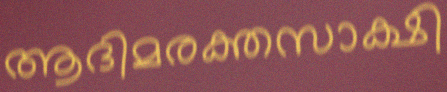
ആദിമരക്തസാക്ഷി